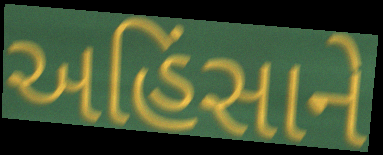
અહિંસાને